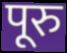
पूरु